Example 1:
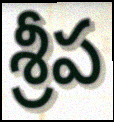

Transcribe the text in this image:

శ్రీప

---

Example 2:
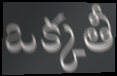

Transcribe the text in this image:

ఒక్కతీ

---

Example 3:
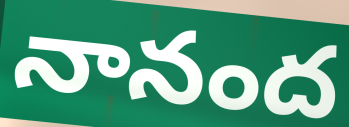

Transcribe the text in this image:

నానంద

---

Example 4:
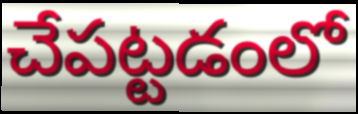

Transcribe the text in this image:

చేపట్టడంలో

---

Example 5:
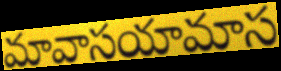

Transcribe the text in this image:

మావాసయామాస